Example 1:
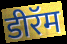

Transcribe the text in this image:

डीरॅम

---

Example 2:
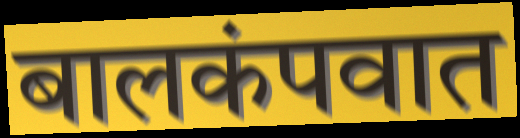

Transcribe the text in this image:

बालकंपवात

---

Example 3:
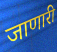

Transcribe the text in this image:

जाणारी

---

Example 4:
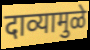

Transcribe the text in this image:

दाव्यामुळे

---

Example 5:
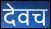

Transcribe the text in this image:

देवच